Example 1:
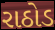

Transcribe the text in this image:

રાઠોડ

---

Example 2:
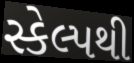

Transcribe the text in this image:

સ્કેલ્પથી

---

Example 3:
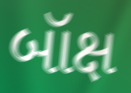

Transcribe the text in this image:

બૉક્ષ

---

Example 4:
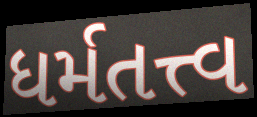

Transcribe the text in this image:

ધર્મતત્ત્વ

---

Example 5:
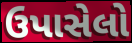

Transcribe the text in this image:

ઉપાસેલો